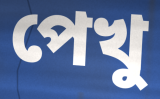
পেখু